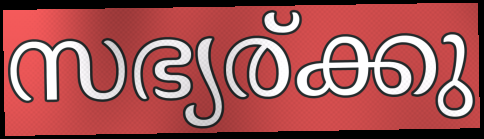
സഭ്യര്ക്കു